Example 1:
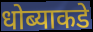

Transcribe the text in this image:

धोब्याकडे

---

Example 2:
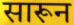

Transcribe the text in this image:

सारून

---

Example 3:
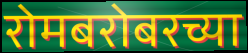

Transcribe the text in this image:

रोमबरोबरच्या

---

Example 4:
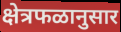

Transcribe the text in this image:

क्षेत्रफळानुसार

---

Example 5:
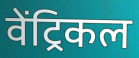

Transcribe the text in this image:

वेंट्रिकल